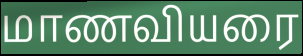
மாணவியரை